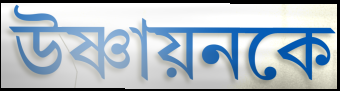
উষ্ণায়নকে